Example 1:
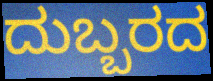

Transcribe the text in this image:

ದುಬ್ಬರದ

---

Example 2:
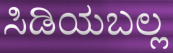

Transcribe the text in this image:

ಸಿಡಿಯಬಲ್ಲ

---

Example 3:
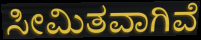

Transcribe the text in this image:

ಸೀಮಿತವಾಗಿವೆ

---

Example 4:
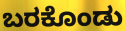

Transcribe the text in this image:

ಬರಕೊಂಡು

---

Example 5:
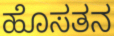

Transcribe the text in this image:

ಹೊಸತನ